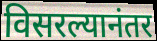
विसरल्यानंतर